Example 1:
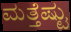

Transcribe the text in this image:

ಮತ್ತೆಷ್ಟು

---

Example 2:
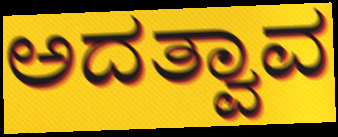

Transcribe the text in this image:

ಅದತ್ವಾವ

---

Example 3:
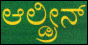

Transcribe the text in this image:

ಆಲ್ಡ್ರೀನ್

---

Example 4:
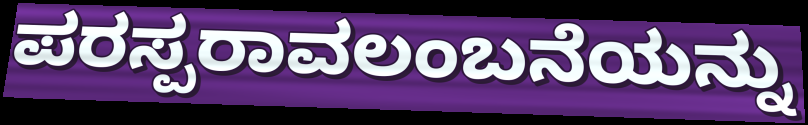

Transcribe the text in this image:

ಪರಸ್ಪರಾವಲಂಬನೆಯನ್ನು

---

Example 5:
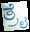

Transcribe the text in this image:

ತ್ರೈ